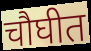
चौघीत